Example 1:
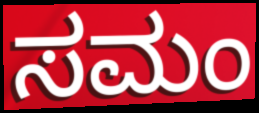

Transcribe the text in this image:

ಸಮಂ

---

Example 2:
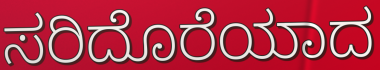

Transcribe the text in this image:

ಸರಿದೊರೆಯಾದ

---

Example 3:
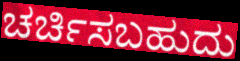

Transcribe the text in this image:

ಚರ್ಚಿಸಬಹುದು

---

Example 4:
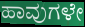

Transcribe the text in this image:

ಹಾವುಗಳೇ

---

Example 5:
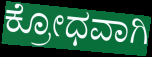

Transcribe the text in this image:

ಕ್ರೋಧವಾಗಿ